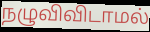
நழுவிவிடாமல்